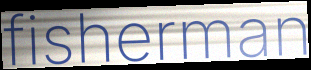
fisherman